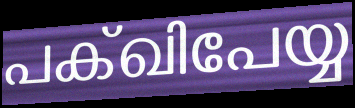
പക്ഖിപേയ്യ